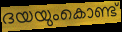
ദയയുംകൊണ്ട്